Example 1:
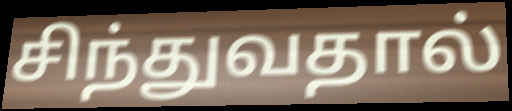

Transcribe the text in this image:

சிந்துவதால்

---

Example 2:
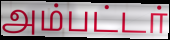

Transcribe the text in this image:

அம்பட்டர்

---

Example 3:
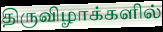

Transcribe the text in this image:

திருவிழாக்களில்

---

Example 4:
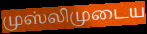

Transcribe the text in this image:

முஸ்லிமுடைய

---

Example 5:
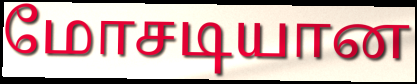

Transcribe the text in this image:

மோசடியான